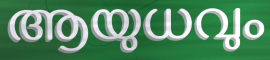
ആയുധവും